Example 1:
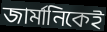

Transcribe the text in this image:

জার্মানিকেই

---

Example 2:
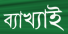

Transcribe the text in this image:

ব্যাখ্যাই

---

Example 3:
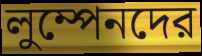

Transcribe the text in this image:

লুম্পেনদের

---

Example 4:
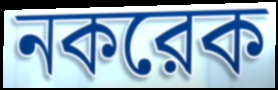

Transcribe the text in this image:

নকরেক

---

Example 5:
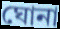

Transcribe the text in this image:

ঘোনা